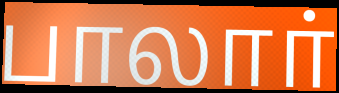
பாலார்